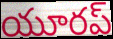
యూరప్